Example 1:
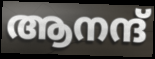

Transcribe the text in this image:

ആനന്ദ്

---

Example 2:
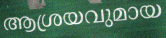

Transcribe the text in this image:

ആശ്രയവുമായ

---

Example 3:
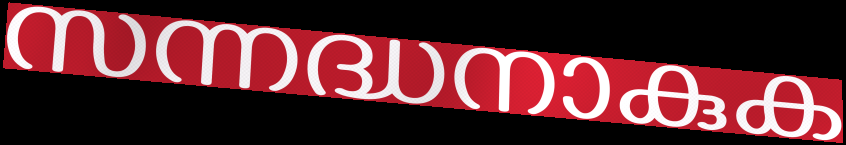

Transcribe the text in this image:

സന്നദ്ധനാകുക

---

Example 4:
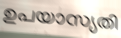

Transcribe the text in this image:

ഉപയാസ്യതി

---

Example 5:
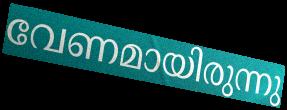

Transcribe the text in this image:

വേണമായിരുന്നു